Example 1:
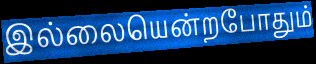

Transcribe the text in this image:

இல்லையென்றபோதும்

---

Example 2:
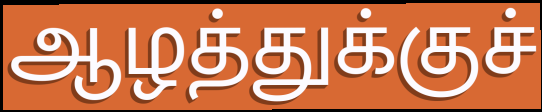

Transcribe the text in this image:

ஆழத்துக்குச்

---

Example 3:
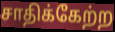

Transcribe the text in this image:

சாதிக்கேற்ற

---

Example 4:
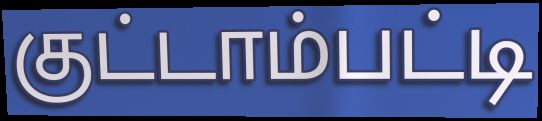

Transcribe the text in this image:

குட்டாம்பட்டி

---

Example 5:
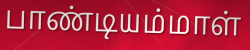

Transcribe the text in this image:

பாண்டியம்மாள்